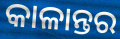
କାଳାନ୍ତର